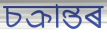
চক্ৰান্তৰ